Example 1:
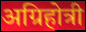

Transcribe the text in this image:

अग्रिहोत्री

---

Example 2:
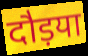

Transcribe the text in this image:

दौड़या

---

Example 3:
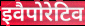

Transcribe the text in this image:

इवैपोरेटिव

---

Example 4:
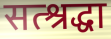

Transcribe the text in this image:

सत्श्रद्धा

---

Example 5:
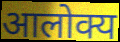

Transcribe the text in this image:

आलोक्य